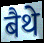
बैथे